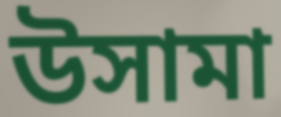
উসামা